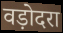
वड़ोदरा